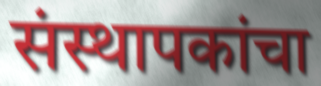
संस्थापकांचा